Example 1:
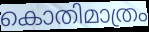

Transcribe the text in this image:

കൊതിമാത്രം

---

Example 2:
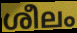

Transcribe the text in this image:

ശീലം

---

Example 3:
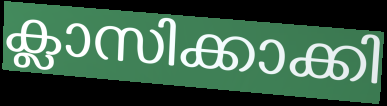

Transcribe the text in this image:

ക്ലാസിക്കാക്കി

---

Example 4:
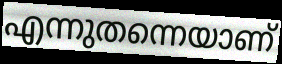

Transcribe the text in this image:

എന്നുതന്നെയാണ്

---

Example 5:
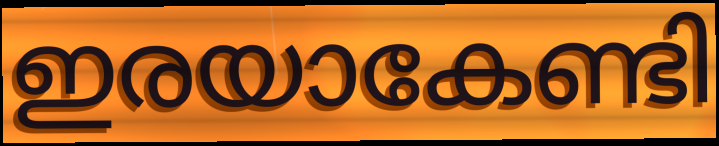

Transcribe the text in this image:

ഇരയാകേണ്ടി